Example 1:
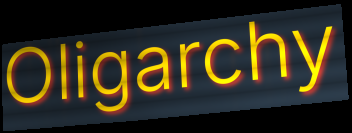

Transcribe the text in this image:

Oligarchy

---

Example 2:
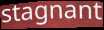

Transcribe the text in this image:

stagnant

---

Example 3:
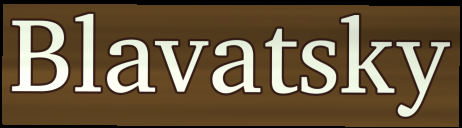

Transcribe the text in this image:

Blavatsky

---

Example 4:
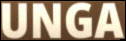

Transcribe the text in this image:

UNGA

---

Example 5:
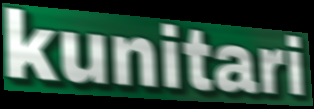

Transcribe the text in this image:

kunitari